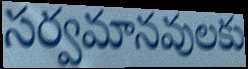
సర్వమానవులకు